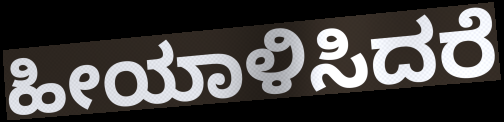
ಹೀಯಾಳಿಸಿದರೆ